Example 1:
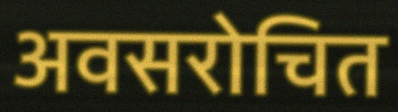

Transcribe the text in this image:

अवसरोचित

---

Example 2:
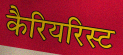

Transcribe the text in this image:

कैरियरिस्ट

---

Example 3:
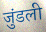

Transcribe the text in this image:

जुंडली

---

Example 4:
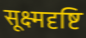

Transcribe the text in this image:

सूक्ष्मदृष्टि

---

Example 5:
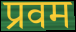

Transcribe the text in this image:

प्रवम